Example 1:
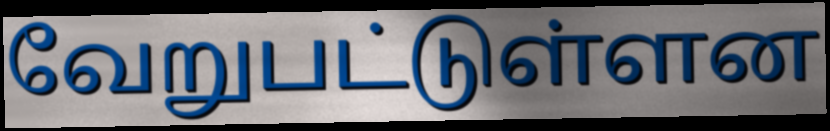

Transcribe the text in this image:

வேறுபட்டுள்ளன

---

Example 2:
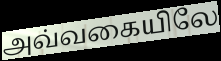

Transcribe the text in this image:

அவ்வகையிலே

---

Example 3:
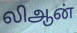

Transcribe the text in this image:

லிஆன்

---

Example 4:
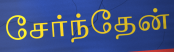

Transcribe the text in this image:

சேர்ந்தேன்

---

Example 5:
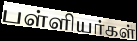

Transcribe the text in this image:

பள்ளியர்கள்